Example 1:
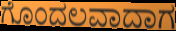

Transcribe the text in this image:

ಗೊಂದಲವಾದಾಗ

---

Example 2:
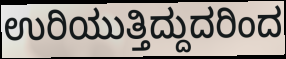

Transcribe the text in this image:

ಉರಿಯುತ್ತಿದ್ದುದರಿಂದ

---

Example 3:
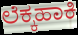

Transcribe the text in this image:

ಲೆಕ್ಕಹಾಕಿ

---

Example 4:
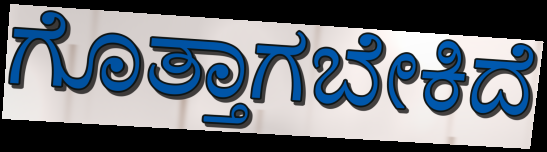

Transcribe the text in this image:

ಗೊತ್ತಾಗಬೇಕಿದೆ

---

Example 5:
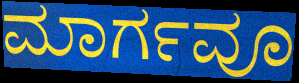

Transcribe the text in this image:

ಮಾರ್ಗವೂ